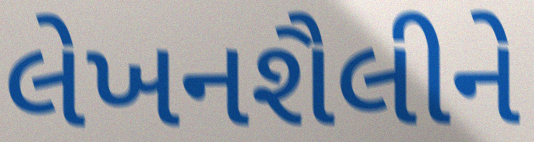
લેખનશૈલીને